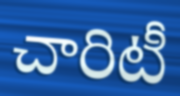
చారిటీ